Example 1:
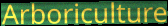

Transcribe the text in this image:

Arboriculture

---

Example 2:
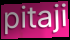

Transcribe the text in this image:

pitaji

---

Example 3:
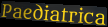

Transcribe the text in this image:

Paediatrica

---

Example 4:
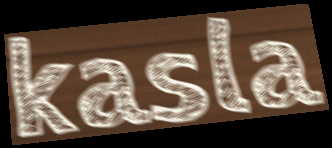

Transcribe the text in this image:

kasla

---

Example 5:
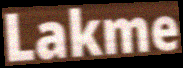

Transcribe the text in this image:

Lakme